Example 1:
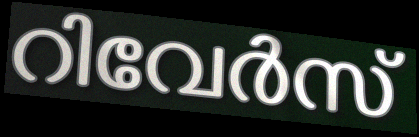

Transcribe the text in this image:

റിവേർസ്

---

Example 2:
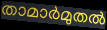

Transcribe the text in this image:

താമാർമുതൽ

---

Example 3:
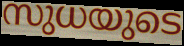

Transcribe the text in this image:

സുധയുടെ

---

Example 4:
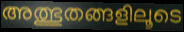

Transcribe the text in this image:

അത്ഭുതങ്ങളിലൂടെ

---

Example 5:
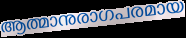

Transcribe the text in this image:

ആത്മാനുരാഗപരമായ